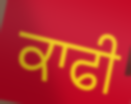
ਕਾਫੀ